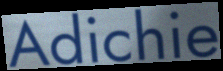
Adichie